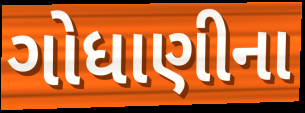
ગોધાણીના